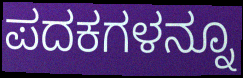
ಪದಕಗಳನ್ನೂ